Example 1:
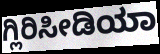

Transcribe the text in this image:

ಗ್ಲಿರಿಸೀಡಿಯಾ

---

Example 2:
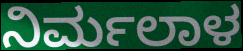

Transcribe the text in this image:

ನಿರ್ಮಲಾಳ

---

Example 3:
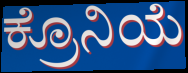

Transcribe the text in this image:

ಕ್ರೊನಿಯೆ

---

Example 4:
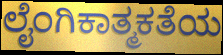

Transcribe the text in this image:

ಲೈಂಗಿಕಾತ್ಮಕತೆಯ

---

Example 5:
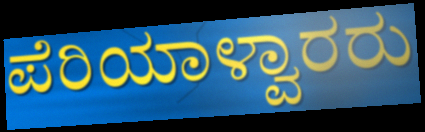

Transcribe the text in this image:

ಪೆರಿಯಾಳ್ವಾರರು